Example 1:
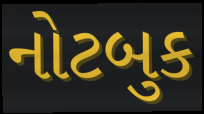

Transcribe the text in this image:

નોટબુક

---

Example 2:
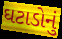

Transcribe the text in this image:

ઘટાડોનું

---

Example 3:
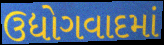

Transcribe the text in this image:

ઉદ્યોગવાદમાં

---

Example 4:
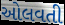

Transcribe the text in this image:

ઓલવતી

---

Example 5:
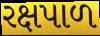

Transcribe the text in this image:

રક્ષપાળ